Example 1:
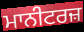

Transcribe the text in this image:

ਮਾਨੀਟਰਜ਼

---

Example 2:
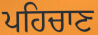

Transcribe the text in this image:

ਪਹਿਚਾਣ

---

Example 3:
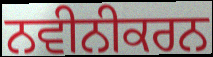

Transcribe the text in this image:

ਨਵੀਨੀਕਰਨ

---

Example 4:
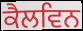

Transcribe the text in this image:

ਕੈਲਵਿਨ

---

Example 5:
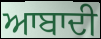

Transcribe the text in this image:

ਆਬਾਦੀ